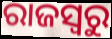
ରାଜସ୍ବରୁ